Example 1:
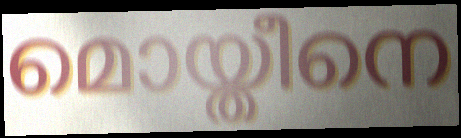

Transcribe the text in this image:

മൊയ്തീനെ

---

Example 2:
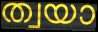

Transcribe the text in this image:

ത്വയാ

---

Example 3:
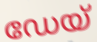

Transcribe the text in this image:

ഡേയ്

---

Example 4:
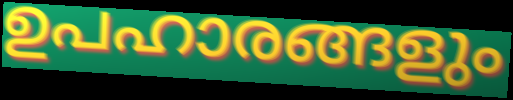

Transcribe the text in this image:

ഉപഹാരങ്ങളും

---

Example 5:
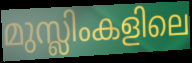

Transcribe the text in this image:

മുസ്ലിംകളിലെ